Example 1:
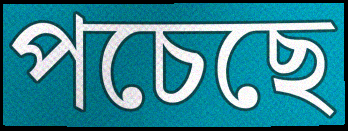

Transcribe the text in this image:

পচেছে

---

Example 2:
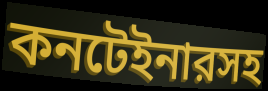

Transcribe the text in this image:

কনটেইনারসহ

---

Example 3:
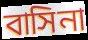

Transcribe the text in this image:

বাসিনা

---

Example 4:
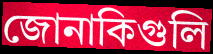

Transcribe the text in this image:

জোনাকিগুলি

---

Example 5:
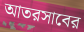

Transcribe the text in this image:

আতরসাবের